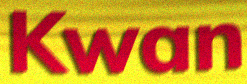
Kwan